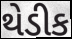
થેડીક